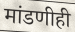
मांडणीही